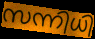
സന്നിധി